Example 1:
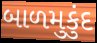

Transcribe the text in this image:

બાળમુકુંદ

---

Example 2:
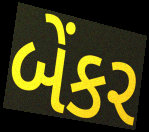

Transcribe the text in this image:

બેંકર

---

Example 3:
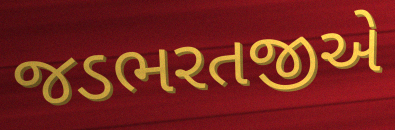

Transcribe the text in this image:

જડભરતજીએ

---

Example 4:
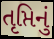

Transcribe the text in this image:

તૃપ્તિનું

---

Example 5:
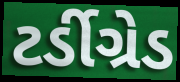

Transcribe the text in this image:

ટર્ડીગ્રેડ